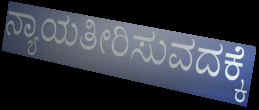
ನ್ಯಾಯತೀರಿಸುವದಕ್ಕೆ